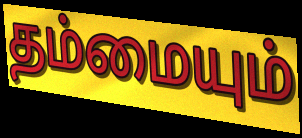
தம்மையும்